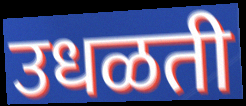
उधळती